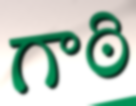
గాఠి